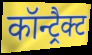
कॉन्ट्रैक्ट